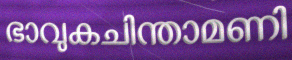
ഭാവുകചിന്താമണി